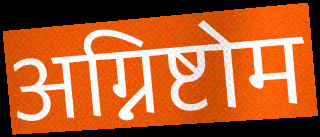
अग्निष्टोम